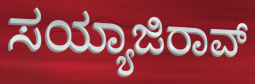
ಸಯ್ಯಾಜಿರಾವ್